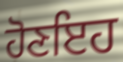
ਹੋਣਇਹ